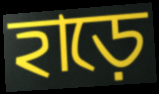
হাড়ে